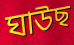
ঘাউছ